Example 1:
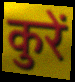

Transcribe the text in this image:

कुरें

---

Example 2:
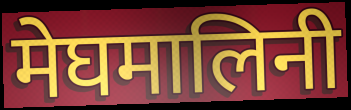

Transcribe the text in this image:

मेघमालिनी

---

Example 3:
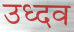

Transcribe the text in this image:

उध्दव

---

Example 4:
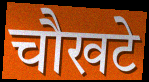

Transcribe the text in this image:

चौखटे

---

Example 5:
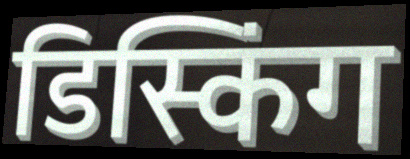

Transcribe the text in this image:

डिस्किंग